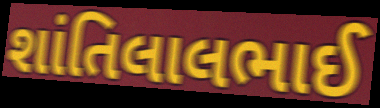
શાંતિલાલભાઈ